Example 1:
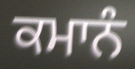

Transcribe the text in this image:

ਕਮਾਨੰ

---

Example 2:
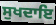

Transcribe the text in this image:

ਸੁਖਦਾਇ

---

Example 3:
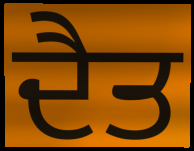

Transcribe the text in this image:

ਦੈਤ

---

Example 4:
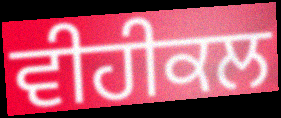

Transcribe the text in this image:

ਵੀਹੀਕਲ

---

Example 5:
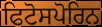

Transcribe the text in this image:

ਫਿਟੋਸਪੋਰਿਨ